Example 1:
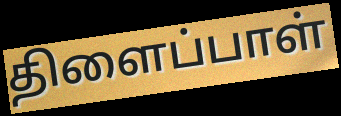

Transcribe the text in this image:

திளைப்பாள்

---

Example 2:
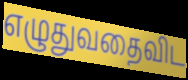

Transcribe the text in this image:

எழுதுவதைவிட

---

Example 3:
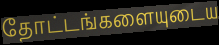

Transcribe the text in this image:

தோட்டங்களையுடைய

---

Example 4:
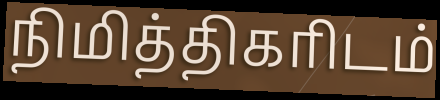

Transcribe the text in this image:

நிமித்திகரிடம்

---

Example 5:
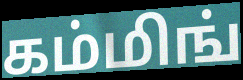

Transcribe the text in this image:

கம்மிங்